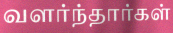
வளர்ந்தார்கள்